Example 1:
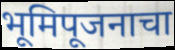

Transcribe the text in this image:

भूमिपूजनाचा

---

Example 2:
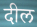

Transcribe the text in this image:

दील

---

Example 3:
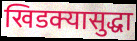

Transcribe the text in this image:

खिडक्यासुद्धा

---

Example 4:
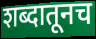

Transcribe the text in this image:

शब्दातूनच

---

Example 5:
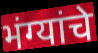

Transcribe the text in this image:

भंग्यांचे